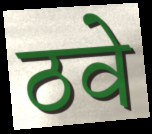
ठवे